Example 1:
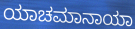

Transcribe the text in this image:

ಯಾಚಮಾನಾಯಾ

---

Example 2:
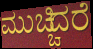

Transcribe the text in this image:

ಮುಚ್ಚಿದರೆ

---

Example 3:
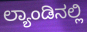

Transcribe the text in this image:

ಲ್ಯಾಂಡಿನಲ್ಲಿ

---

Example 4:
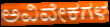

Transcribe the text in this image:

ಅವಿವೇಕಗಳ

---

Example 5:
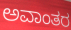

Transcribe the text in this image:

ಅವಾಂತರ